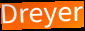
Dreyer